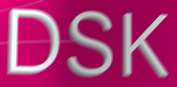
DSK